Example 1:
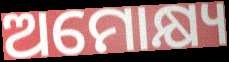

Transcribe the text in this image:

ଅମୋକ୍ଷ୍ୟ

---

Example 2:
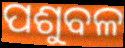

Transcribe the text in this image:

ପଶୁବଳ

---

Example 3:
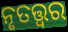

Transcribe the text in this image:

ନୃତତ୍ତ୍ୱର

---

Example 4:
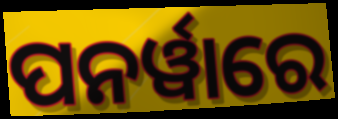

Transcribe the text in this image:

ପନର୍ୱାରେ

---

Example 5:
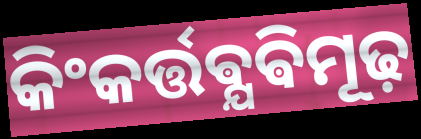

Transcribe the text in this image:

କିଂକର୍ତ୍ତଵ୍ଯଵିମୂଢ଼